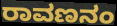
ರಾವಣನಂ